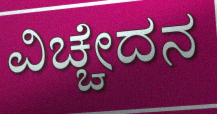
ವಿಚ್ಚೇದನ